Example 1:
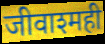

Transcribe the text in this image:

जीवाश्मही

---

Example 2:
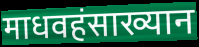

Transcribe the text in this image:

माधवहंसाख्यान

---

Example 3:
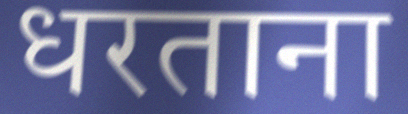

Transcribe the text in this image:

धरताना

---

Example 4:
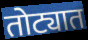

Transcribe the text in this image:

तोट्यात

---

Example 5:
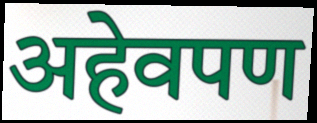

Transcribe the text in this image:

अहेवपण